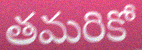
తమరికో